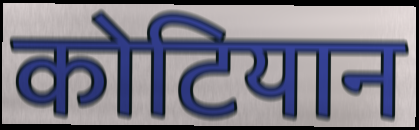
कोटियान